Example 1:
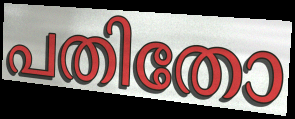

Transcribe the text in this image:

പതിതോ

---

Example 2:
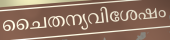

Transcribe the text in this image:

ചൈതന്യവിശേഷം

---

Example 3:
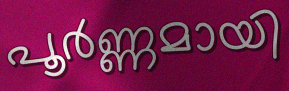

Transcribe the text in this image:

പൂർണ്ണമായി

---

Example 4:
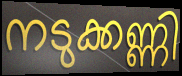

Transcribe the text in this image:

നടുക്കണ്ണി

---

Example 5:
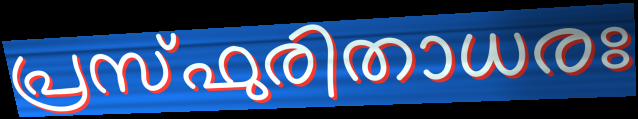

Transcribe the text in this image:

പ്രസ്ഫുരിതാധരഃ